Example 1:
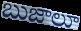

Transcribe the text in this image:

బుజాలూ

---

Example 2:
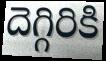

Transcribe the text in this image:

దెగ్గిరికి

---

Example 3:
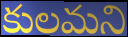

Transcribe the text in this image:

కులమని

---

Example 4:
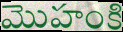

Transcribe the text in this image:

మొహంకి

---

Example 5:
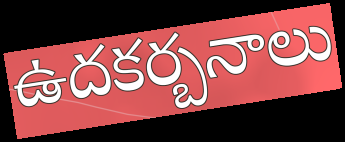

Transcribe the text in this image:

ఉదకర్బనాలు